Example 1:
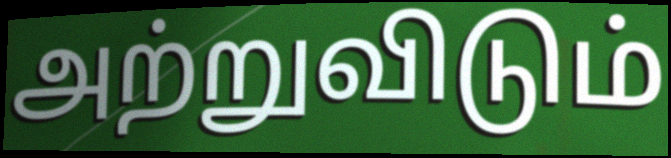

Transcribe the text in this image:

அற்றுவிடும்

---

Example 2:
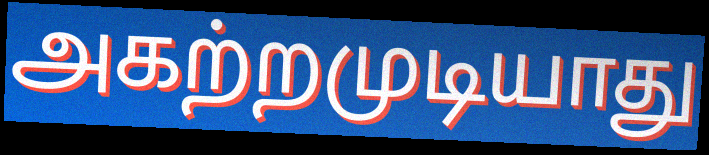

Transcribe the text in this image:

அகற்றமுடியாது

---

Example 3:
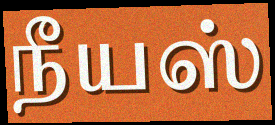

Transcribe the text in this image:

நீயஸ்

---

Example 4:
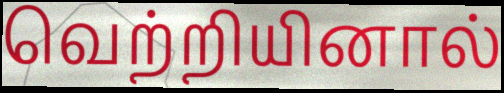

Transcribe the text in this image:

வெற்றியினால்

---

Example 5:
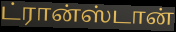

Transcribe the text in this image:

ட்ரான்ஸ்டான்